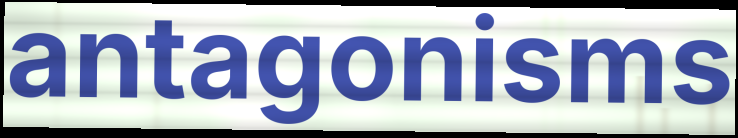
antagonisms